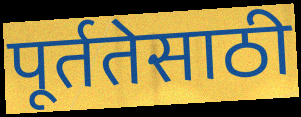
पूर्ततेसाठी